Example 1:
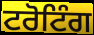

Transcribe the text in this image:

ਟਰੋਟਿੰਗ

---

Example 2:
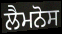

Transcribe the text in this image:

ਲੈਮਨੋਸ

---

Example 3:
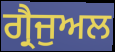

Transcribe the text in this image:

ਗ੍ਰੈਜੁਅਲ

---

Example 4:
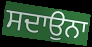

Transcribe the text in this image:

ਸਦਾਉਨਾ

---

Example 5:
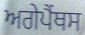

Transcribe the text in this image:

ਅਗੇਪੈਂਥਸ